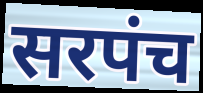
सरपंच